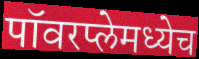
पॉवरप्लेमध्येच